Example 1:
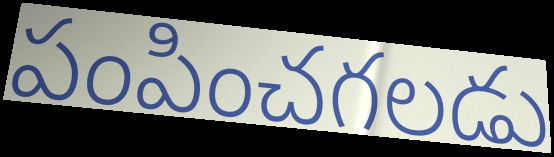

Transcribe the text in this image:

పంపించగలడు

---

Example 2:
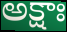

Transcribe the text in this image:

అక్షాః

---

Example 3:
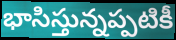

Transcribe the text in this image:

భాసిస్తున్నప్పటికీ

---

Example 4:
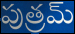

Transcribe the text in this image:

పుత్రమ్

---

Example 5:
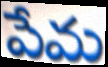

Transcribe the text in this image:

పేమ